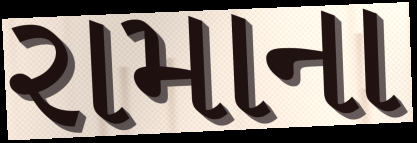
રામાના